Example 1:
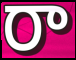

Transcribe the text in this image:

రా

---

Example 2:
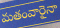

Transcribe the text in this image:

మతంవారైనా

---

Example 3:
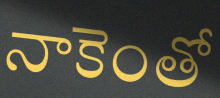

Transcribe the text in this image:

నాకెంతో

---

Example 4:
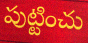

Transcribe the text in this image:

పుట్టించు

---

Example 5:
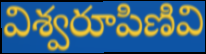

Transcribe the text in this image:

విశ్వరూపిణివి